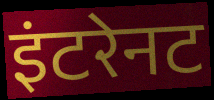
इंटरेनट